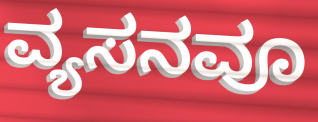
ವ್ಯಸನವೂ